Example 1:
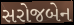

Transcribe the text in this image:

સરોજબેન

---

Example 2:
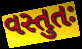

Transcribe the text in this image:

વસ્તુતઃ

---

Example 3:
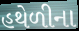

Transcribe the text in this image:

હથેળીના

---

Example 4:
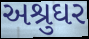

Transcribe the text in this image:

અશ્રુઘર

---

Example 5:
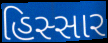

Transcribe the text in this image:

હિસ્સાર